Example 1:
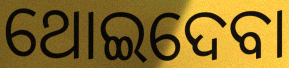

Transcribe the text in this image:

ଥୋଇଦେବା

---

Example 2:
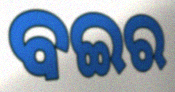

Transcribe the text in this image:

ବଇର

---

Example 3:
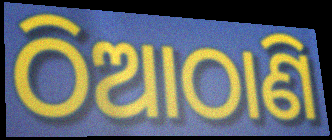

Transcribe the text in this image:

ଠିଆଠାଣି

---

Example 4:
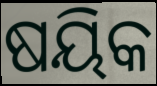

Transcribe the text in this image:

ଷୟିକ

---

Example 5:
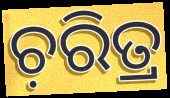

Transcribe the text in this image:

ଚ଼ରିତ୍ର